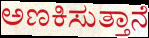
ಅಣಕಿಸುತ್ತಾನೆ